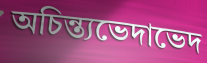
অচিন্ত্যভেদাভেদ